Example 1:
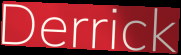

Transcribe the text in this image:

Derrick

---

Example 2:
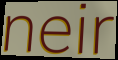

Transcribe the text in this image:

neir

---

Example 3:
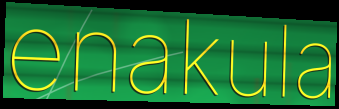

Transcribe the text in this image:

enakula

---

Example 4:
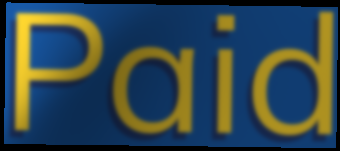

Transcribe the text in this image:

Paid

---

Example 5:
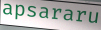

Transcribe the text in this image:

apsararu